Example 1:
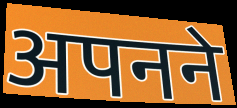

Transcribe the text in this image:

अपनने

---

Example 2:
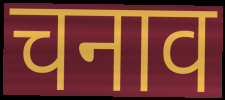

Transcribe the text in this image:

चनाव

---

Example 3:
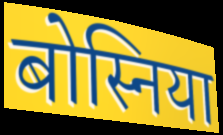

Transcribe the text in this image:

बोस्निया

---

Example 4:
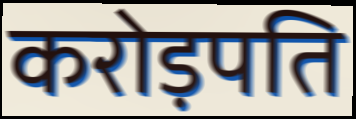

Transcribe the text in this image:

करोड़पति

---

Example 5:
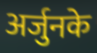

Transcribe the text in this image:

अर्जुनके